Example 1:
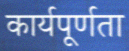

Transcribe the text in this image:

कार्यपूर्णता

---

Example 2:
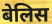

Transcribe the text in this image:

बेलिस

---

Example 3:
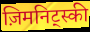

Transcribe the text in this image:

ज़िमनिट्स्की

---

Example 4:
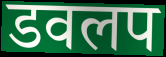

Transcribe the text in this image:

डवलप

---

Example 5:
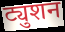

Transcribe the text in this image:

ट्युशन